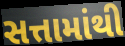
સત્તામાંથી